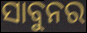
ସାବୁନର